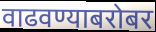
वाढवण्याबरोबर